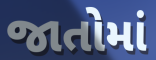
જાતોમાં